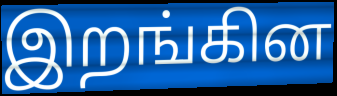
இறங்கின